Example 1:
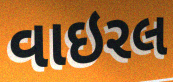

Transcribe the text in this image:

વાઇરલ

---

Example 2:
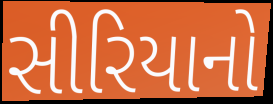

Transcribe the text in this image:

સીરિયાનો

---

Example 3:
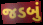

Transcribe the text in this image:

જડબું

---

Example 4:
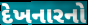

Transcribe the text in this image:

દેખનારનો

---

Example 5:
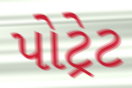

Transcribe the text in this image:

પોટ્રેટ